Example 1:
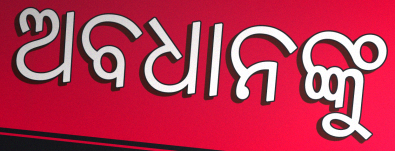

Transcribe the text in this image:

ଅବଧାନଙ୍କୁ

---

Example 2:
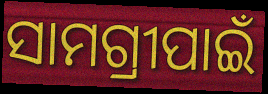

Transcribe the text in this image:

ସାମଗ୍ରୀପାଇଁ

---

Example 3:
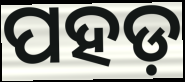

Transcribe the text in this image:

ପହଡ଼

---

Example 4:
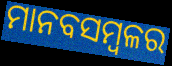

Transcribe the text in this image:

ମାନବସମ୍ବଳର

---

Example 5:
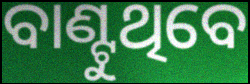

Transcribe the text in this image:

ବାଣ୍ଟୁଥିବେ